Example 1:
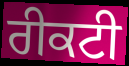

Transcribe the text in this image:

ਰੀਕਟੀ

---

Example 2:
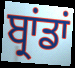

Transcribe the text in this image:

ਬ੍ਰਾਂਡਾਂ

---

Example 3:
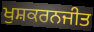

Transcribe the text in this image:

ਖੁਸ਼ਕਰਨਜੀਤ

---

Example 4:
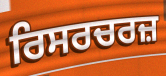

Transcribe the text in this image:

ਰਿਸਰਚਰਜ਼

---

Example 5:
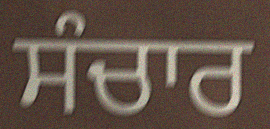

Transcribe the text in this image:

ਸੰਚਾਰ